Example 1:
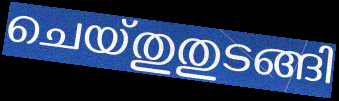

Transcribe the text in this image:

ചെയ്തുതുടങ്ങി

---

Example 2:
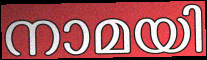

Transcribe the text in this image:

നാമയി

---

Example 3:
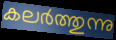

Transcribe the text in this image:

കലർത്തുന്നു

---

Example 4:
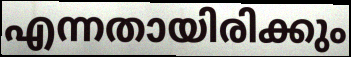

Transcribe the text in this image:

എന്നതായിരിക്കും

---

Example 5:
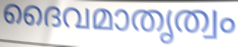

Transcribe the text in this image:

ദൈവമാതൃത്വം